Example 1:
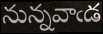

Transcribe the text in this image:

నున్నవాఁడ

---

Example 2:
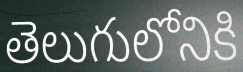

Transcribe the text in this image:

తెలుగులోనికి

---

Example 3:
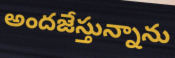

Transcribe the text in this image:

అందజేస్తున్నాను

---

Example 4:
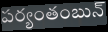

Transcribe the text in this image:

పర్యంతంబున్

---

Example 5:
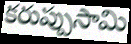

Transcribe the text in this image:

కరుప్పుసామి